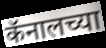
कॅनालच्या